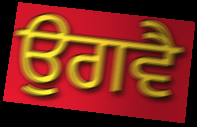
ਉਗਵੈ